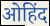
ओहिंद